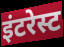
इंटरेस्ट